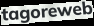
tagoreweb